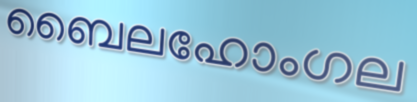
ബൈലഹോംഗല